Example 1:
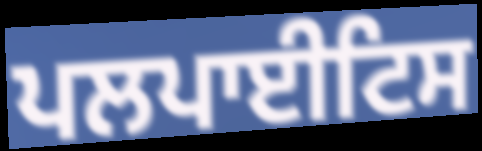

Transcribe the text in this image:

ਪਲਪਾਈਟਿਸ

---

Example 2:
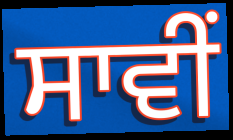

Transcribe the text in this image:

ਸਾਵੀਂ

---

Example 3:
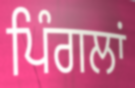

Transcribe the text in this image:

ਪਿੰਗਲਾਂ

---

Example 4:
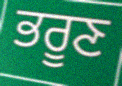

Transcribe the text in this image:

ਭਰੂਣ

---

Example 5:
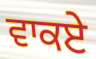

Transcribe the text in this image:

ਵਾਕਏ